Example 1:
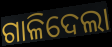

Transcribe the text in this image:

ଗାଳିଦେଲା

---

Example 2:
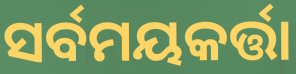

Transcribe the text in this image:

ସର୍ବମୟକର୍ତ୍ତା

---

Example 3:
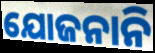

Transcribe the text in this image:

ଯୋଜନାନି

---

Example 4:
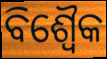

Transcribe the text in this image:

ବିଶ୍ୱୈକ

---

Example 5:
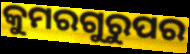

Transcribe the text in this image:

କୁମରଗୁରୁପର